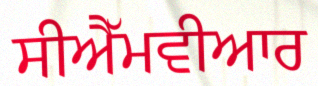
ਸੀਐੱਮਵੀਆਰ